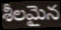
శీలమైన